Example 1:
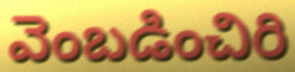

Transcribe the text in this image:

వెంబడించిరి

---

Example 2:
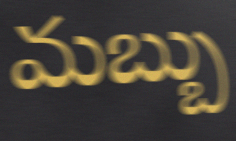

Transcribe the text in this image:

మబ్బు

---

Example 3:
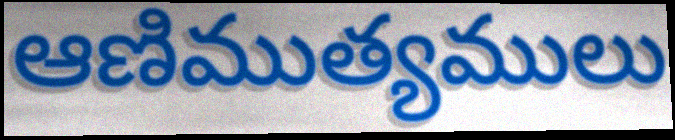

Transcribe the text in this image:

ఆణిముత్యములు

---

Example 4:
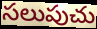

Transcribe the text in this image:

సలుపుచు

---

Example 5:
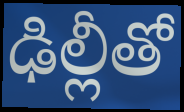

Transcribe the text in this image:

ఢిల్లీతో